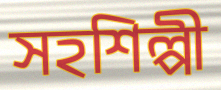
সহশিল্পী